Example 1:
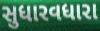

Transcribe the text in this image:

સુધારવધારા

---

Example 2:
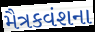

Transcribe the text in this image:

મૈત્રકવંશના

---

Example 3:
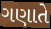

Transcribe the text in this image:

ગણાતે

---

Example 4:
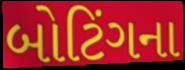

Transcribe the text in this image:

બોટિંગના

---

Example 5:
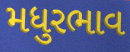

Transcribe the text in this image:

મધુરભાવ